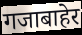
गजाबाहेर